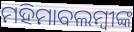
ମହିମାବଲମ୍ବୀଙ୍କ